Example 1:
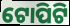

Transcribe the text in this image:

ଟୋପିଟି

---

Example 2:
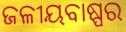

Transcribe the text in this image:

ଜଳୀୟବାଷ୍ପର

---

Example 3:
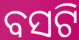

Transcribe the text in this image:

ବସଟି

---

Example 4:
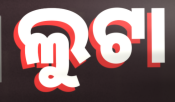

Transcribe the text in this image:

ଲୁଟା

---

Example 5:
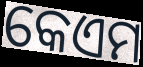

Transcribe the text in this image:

କେଏମ